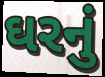
ઘરનું